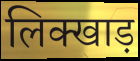
लिक्खाड़